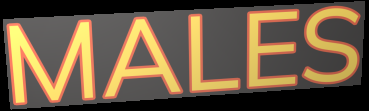
MALES